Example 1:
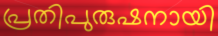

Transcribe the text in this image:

പ്രതിപുരുഷനായി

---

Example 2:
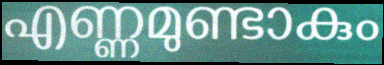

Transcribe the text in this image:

എണ്ണമുണ്ടാകും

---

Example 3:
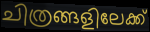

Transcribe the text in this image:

ചിത്രങ്ങളിലേക്ക്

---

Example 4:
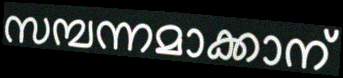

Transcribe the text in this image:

സമ്പന്നമാക്കാന്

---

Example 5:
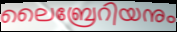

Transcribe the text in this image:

ലൈബ്രേറിയനും